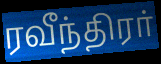
ரவீந்திரர்